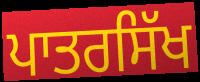
ਪਾਤਰਸਿੱਖ